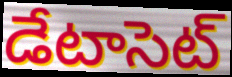
డేటాసెట్